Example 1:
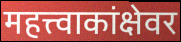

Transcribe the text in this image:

महत्त्वाकांक्षेवर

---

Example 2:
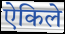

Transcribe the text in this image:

ऐकिले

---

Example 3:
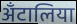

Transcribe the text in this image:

अँटालिया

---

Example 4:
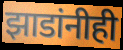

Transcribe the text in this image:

झाडांनीही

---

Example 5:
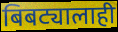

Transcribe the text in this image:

बिबट्यालाही